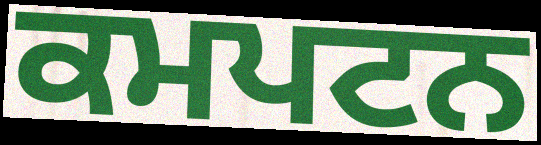
ਕਮਪਟਨ